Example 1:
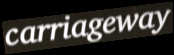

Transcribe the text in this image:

carriageway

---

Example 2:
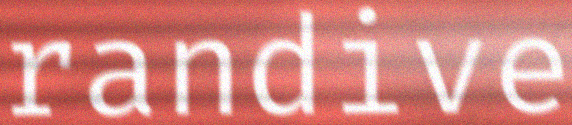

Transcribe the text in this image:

randive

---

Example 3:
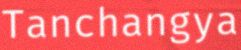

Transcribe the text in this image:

Tanchangya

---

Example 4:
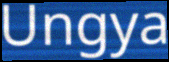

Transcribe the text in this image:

Ungya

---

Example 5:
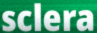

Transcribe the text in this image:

sclera